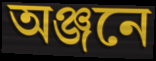
অঞ্জনে